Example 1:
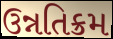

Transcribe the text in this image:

ઉન્નતિક્રમ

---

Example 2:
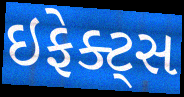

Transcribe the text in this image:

ઇફેક્ટ્સ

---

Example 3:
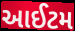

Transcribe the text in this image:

આઈટમ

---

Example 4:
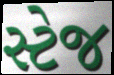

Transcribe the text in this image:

સ્ટેજ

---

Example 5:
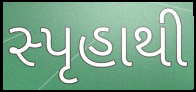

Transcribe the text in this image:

સ્પૃહાથી